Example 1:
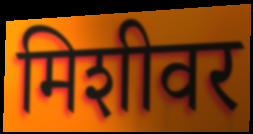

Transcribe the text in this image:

मिशीवर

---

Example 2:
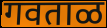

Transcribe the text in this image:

गवताळ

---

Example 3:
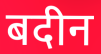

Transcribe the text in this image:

बदीन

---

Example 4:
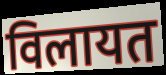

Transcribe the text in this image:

विलायत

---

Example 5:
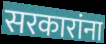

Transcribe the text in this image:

सरकारांना